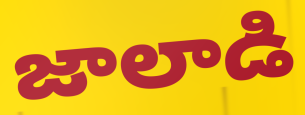
జాలాడి